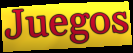
Juegos